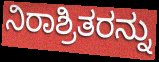
ನಿರಾಶ್ರಿತರನ್ನು